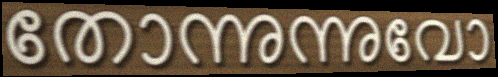
തോന്നുന്നുവോ